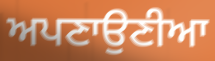
ਅਪਣਾਉਣੀਆ